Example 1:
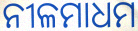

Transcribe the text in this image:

ନୀଳମାଧମ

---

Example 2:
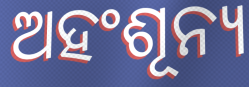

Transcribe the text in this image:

ଅହଂଶୂନ୍ୟ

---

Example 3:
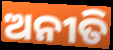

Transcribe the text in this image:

ଅନୀତି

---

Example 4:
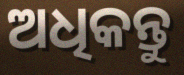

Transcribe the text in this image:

ଅଧିକନ୍ତୁ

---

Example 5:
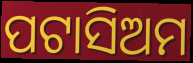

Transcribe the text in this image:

ପଟାସିଅମ